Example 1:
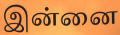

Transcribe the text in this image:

இன்னை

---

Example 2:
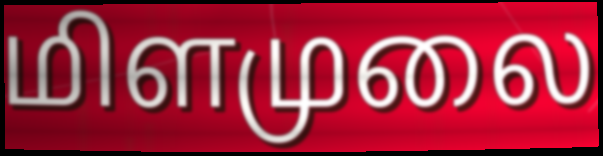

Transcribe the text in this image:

மிளமுலை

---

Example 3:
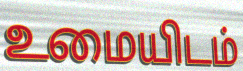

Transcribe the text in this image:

உமையிடம்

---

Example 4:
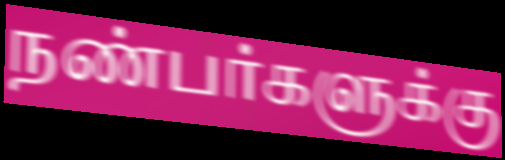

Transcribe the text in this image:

நண்பர்களுக்கு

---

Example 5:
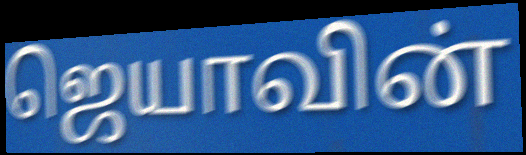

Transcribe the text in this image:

ஜெயாவின்